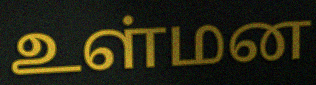
உள்மன